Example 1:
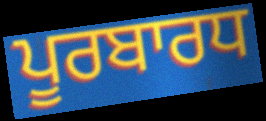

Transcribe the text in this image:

ਪੂਰਬਾਰਧ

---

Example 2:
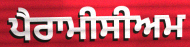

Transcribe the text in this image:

ਪੈਰਾਮੀਸੀਅਮ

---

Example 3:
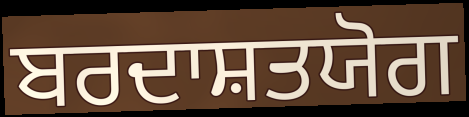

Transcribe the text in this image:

ਬਰਦਾਸ਼ਤਯੋਗ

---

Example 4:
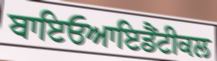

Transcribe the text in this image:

ਬਾਇਓਆਇਡੈਂਟੀਕਲ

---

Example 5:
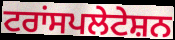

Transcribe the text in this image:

ਟਰਾਂਸਪਲੇਟੇਸ਼ਨ